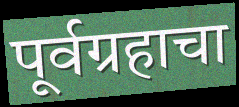
पूर्वग्रहाचा